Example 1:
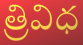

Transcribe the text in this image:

త్రివిధ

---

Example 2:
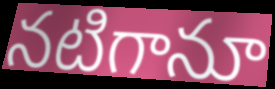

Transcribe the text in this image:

నటిగానూ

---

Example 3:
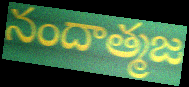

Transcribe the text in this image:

నందాత్మజ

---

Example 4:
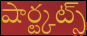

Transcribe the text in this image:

షార్ట్కట్స్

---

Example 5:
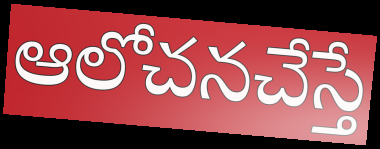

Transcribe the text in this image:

ఆలోచనచేస్తే